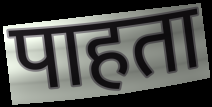
पाहता